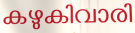
കഴുകിവാരി